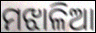
ମଝାଳିଆ